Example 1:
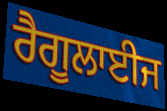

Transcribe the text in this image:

ਰੈਗੂਲਾਈਜ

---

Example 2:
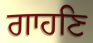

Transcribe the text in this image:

ਗਾਹਣਿ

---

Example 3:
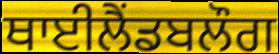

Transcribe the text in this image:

ਥਾਈਲੈਂਡਬਲੌਗ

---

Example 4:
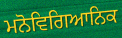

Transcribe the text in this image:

ਮਨੋਵਿਗਿਆਨਿਕ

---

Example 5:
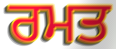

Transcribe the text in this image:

ਰਮਤ